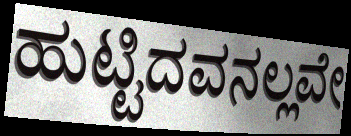
ಹುಟ್ಟಿದವನಲ್ಲವೇ